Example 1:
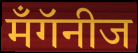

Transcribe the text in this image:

मँगॅनीज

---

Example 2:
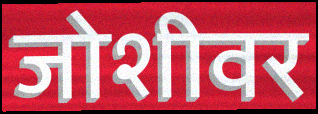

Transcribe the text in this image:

जोशीवर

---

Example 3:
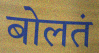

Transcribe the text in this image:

बोलतं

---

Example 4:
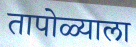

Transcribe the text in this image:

तापोळ्याला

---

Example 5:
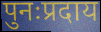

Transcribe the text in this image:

पुनःप्रदाय